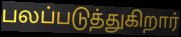
பலப்படுத்துகிறார்